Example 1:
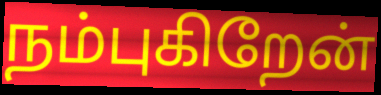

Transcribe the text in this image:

நம்புகிறேன்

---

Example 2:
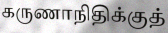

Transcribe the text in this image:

கருணாநிதிக்குத்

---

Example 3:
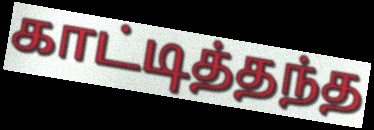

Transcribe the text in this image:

காட்டித்தந்த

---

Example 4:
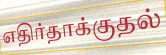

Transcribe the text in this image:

எதிர்தாக்குதல்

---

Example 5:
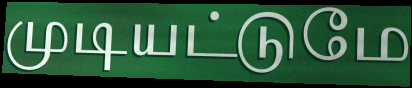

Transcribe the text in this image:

முடியட்டுமே